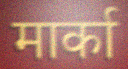
मार्का